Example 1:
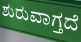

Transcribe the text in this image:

ಶುರುವಾಗ್ತದೆ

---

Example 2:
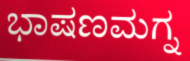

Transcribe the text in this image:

ಭಾಷಣಮಗ್ನ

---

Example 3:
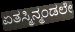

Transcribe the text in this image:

ಏತಸ್ಮಿನ್ಮಂಡಲೇ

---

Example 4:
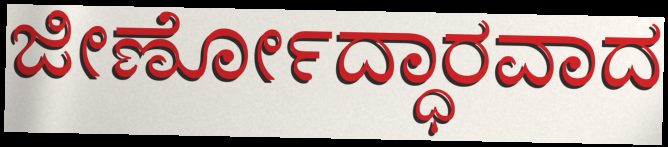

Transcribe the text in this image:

ಜೀರ್ಣೋದ್ಧಾರವಾದ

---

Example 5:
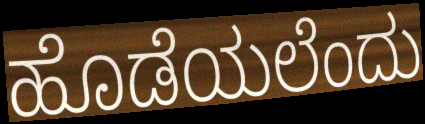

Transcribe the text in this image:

ಹೊಡೆಯಲೆಂದು